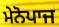
ਮੇਨੋਪਾਜ